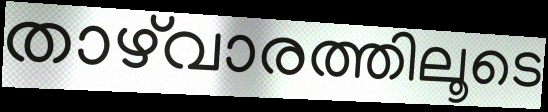
താഴ്‌വാരത്തിലൂടെ